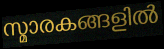
സ്മാരകങ്ങളിൽ